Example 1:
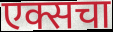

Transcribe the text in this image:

एक्सचा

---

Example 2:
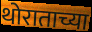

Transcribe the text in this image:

थोराताच्या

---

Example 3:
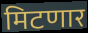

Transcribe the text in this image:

मिटणार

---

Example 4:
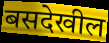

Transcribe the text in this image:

बसदेखील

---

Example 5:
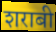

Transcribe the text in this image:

शराबी